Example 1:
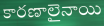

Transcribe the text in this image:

కారణాలైనాయి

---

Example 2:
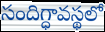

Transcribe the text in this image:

సందిగ్ధావస్థలో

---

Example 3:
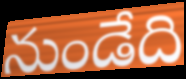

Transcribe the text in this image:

నుండేది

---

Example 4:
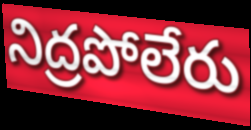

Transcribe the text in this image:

నిద్రపోలేరు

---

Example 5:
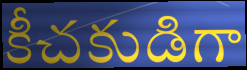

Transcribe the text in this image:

కీచకుడిగా